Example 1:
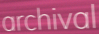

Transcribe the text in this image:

archival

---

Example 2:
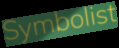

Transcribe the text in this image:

Symbolist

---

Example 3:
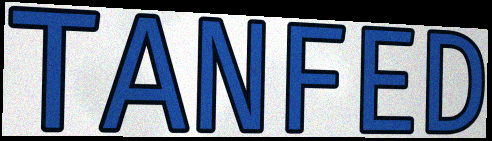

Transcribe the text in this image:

TANFED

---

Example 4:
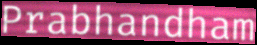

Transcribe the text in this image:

Prabhandham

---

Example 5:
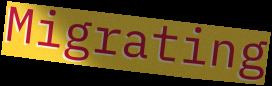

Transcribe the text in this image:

Migrating